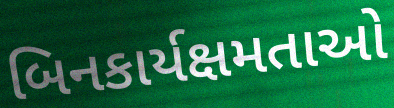
બિનકાર્યક્ષમતાઓ